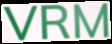
VRM